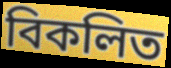
বিকলিত